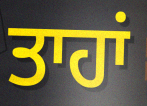
ਤਾਹਾਂ